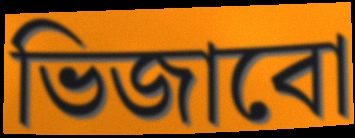
ভিজাবো